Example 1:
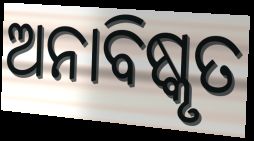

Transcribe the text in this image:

ଅନାବିଷ୍କୃତ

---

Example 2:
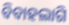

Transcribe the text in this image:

ବିବାହଲାଗି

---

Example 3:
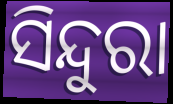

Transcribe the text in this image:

ସିନ୍ଦୁରା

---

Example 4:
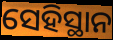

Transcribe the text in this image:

ସେହିସ୍ଥାନ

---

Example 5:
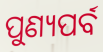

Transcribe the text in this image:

ପୁଣ୍ୟପର୍ବ